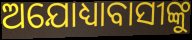
ଅଯୋଧ୍ୟାବାସୀଙ୍କୁ